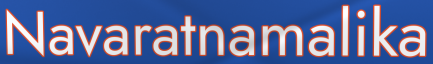
Navaratnamalika